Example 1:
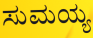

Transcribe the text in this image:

ಸುಮಯ್ಯ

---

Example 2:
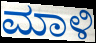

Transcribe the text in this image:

ಮಾಳಿ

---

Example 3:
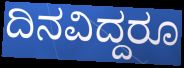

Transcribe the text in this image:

ದಿನವಿದ್ದರೂ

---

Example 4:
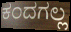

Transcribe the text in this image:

ಕಂದಗಲ್ಲ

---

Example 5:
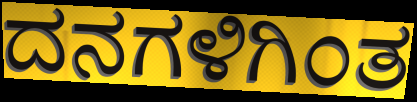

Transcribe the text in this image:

ದನಗಳಿಗಿಂತ